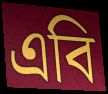
এবি